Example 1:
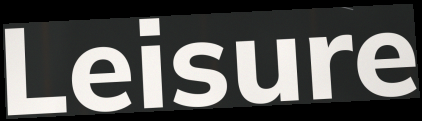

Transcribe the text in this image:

Leisure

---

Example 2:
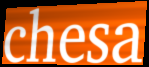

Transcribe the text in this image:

chesa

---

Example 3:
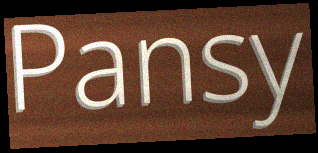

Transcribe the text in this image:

Pansy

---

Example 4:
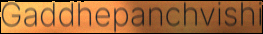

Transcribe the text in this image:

Gaddhepanchvishi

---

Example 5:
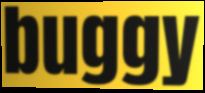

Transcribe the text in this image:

buggy